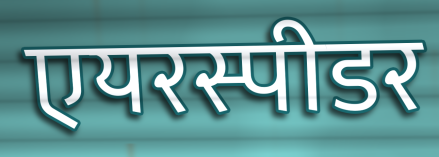
एयरस्पीडर